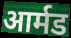
आर्मड